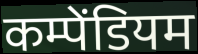
कम्पेंडियम